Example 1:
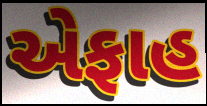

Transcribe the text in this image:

એફાહ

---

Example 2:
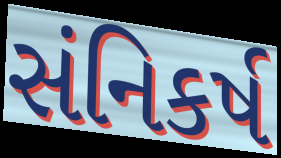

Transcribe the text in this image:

સંનિકર્ષ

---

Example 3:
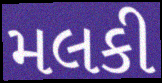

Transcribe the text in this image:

મલકી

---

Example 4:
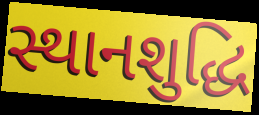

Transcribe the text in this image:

સ્થાનશુદ્ધિ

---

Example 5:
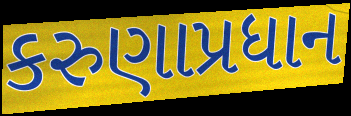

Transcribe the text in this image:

કરુણાપ્રધાન